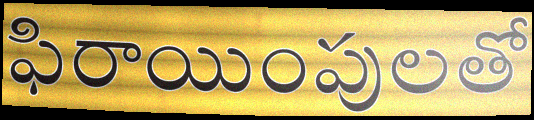
ఫిరాయింపులతో